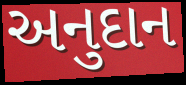
અનુદાન